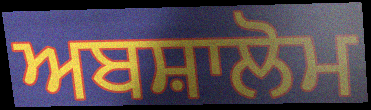
ਅਬਸ਼ਾਲੋਮ